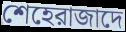
শেহেরাজাদে